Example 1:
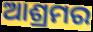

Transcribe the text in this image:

ଆଶ୍ରମର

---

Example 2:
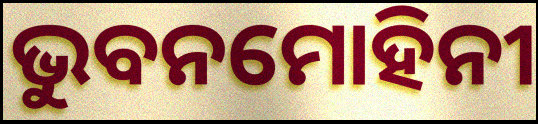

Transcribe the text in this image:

ଭୁବନମୋହିନୀ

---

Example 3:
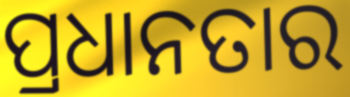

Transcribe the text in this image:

ପ୍ରଧାନତାର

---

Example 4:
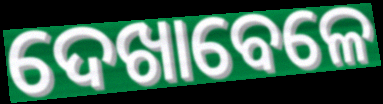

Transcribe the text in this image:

ଦେଖାବେଳେ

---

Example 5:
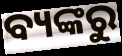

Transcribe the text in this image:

ବ୍ୟଙ୍କରୁ